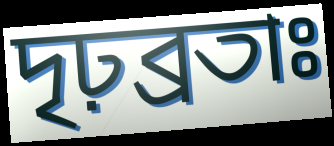
দৃঢ়ব্রতাঃ